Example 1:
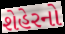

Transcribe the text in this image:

શેહેરનો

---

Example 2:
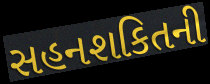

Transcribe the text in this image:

સહનશકિતની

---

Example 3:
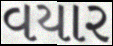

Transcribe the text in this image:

વયાર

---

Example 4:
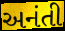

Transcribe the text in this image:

અનંતી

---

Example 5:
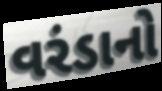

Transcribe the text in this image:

વરંડાનો